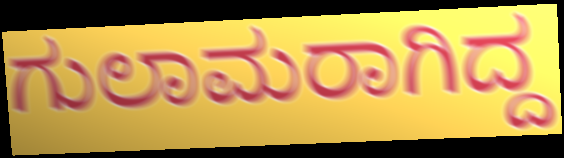
ಗುಲಾಮರಾಗಿದ್ದ